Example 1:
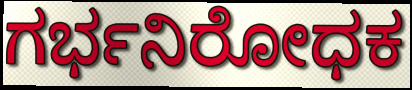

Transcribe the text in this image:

ಗರ್ಭನಿರೋಧಕ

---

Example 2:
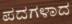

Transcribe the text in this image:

ಪದಗಳಾದ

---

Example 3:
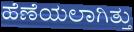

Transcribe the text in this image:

ಹೆಣೆಯಲಾಗಿತ್ತು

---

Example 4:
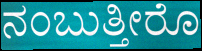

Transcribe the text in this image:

ನಂಬುತ್ತೀರೊ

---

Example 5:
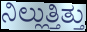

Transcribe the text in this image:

ನಿಲ್ಲುತ್ತಿತ್ತು